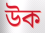
উক